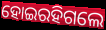
ହୋଇରହିଗଲେ